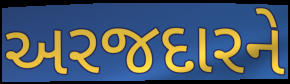
અરજદારને